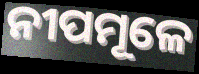
ନୀପମୂଳେ